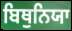
ਬਿਥੁਨਿਯਾ